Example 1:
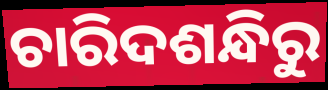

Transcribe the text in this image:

ଚାରିଦଶନ୍ଧିରୁ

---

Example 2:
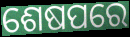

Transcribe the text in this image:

ଶେଷପରେ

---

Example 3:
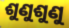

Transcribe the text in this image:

ଶୁଣୁଶୁଣୁ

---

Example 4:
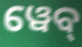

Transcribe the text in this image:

ୱେବ୍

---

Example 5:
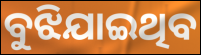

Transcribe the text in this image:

ବୁଝିଯାଇଥିବ